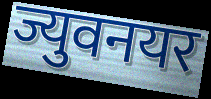
ज्युवनयर